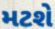
મટશે